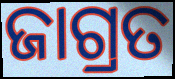
ଜାଗ୍ରତ